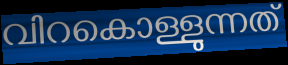
വിറകൊള്ളുന്നത്